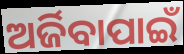
ଅର୍ଜିବାପାଇଁ